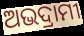
ଅଭଦ୍ରାମୀ